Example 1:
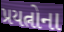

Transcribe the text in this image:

પ્રયત્નોના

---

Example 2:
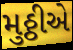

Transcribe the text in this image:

મુઠ્ઠીએ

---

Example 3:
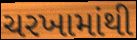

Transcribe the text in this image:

ચરખામાંથી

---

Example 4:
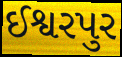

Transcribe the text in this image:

ઈશ્વરપુર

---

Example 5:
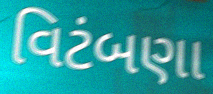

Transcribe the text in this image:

વિટંબણા